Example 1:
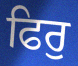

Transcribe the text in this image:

ਫਿਰੁ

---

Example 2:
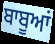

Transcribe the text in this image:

ਬਾਬੂਆਂ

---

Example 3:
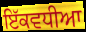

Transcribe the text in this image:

ਇੱਕਵਧੀਆ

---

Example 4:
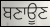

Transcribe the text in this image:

ਬਣਾਊਣ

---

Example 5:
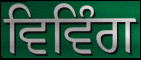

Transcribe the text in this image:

ਵਿਵਿੰਗ